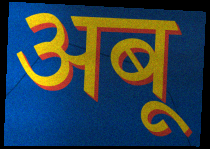
अबू